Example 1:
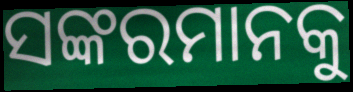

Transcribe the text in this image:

ସଙ୍କରମାନକୁ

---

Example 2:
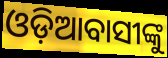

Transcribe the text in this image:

ଓଡ଼ିଆବାସୀଙ୍କୁ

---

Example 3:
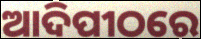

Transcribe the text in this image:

ଆଦିପୀଠରେ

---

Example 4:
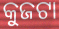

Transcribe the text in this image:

କୁଜଟା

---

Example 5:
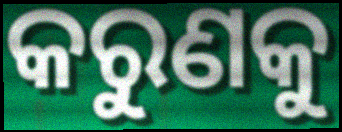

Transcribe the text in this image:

କରୁଣକୁ